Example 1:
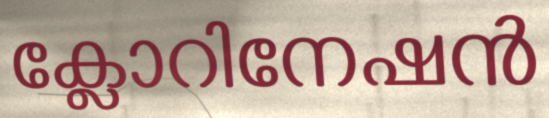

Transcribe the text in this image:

ക്ലോറിനേഷൻ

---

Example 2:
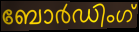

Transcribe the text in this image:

ബോർഡിംഗ്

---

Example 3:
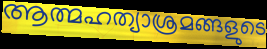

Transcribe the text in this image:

ആത്മഹത്യാശ്രമങ്ങളുടെ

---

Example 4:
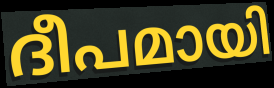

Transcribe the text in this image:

ദീപമായി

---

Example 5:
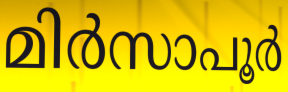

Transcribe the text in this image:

മിർസാപൂർ